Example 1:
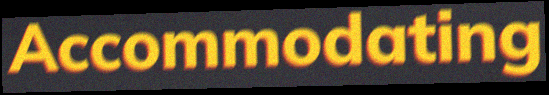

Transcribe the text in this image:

Accommodating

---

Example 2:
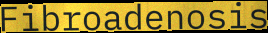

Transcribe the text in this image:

Fibroadenosis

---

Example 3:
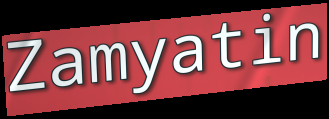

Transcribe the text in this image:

Zamyatin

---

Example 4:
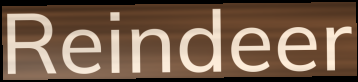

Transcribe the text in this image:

Reindeer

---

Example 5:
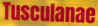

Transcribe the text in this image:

Tusculanae